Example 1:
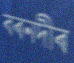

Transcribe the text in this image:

বৰনদীৰ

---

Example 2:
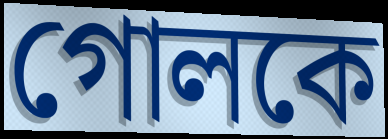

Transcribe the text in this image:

গোলকে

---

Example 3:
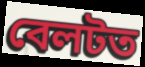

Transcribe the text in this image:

বেলটত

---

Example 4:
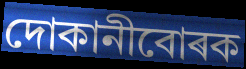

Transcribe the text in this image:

দোকানীবোৰক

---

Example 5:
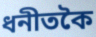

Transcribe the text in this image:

ধনীতকৈ